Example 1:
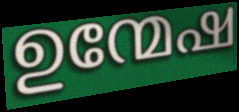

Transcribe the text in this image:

ഉന്മേഷ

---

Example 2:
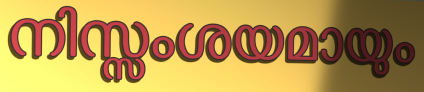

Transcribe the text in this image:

നിസ്സംശയമായും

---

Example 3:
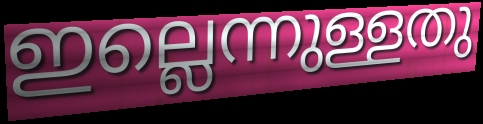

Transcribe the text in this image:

ഇല്ലെന്നുള്ളതു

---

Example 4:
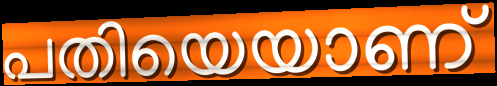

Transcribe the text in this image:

പതിയെയാണ്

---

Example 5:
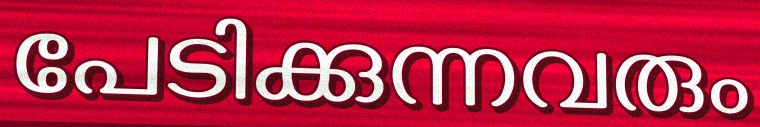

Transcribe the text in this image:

പേടിക്കുന്നവരും